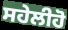
ਸਹੇਲੀਹੋ